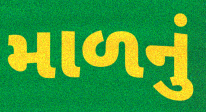
માળનું